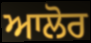
ਆਲੋਰ